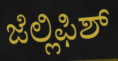
ಜೆಲ್ಲಿಫಿಶ್